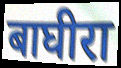
बाघीरा